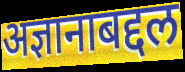
अज्ञानाबद्दल